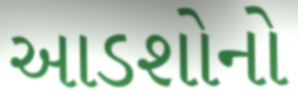
આડશોનો